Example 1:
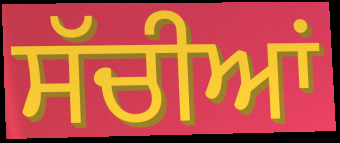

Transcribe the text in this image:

ਸੱਚੀਆਂ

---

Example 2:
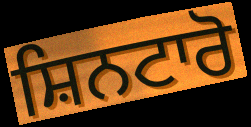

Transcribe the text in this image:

ਸ਼ਿਨਟਾਰੋ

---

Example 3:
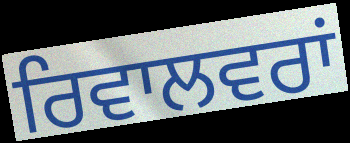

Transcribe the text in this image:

ਰਿਵਾਲਵਰਾਂ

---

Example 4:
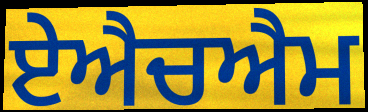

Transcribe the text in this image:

ਏਐਚਐਮ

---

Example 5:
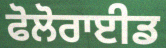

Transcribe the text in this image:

ਫੋਲੋਰਾਈਡ